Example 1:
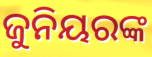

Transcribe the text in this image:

ଜୁନିୟରଙ୍କ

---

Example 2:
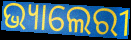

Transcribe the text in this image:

ଭ୍ୟାଲେରୀ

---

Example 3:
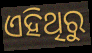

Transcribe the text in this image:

ଏହିଥିରୁ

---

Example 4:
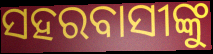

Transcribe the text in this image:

ସହରବାସୀଙ୍କୁ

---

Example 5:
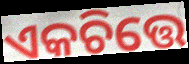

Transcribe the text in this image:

ଏକଚିତ୍ତେ